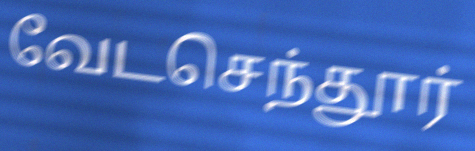
வேடசெந்தூர்